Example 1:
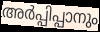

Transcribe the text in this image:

അർപ്പിപ്പാനും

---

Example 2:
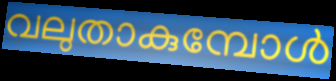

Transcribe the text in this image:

വലുതാകുമ്പോൾ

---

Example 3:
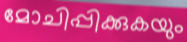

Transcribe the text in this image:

മോചിപ്പിക്കുകയും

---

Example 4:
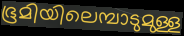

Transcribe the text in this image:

ഭൂമിയിലെമ്പാടുമുള്ള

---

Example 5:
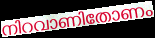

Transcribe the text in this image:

നിറവാണിതോണം